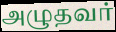
அழுதவர்